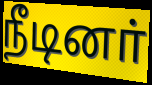
நீடினர்